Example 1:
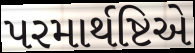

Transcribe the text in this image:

પરમાર્થષ્ટિએ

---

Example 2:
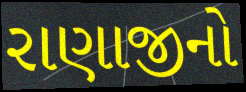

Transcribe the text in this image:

રાણાજીનો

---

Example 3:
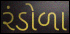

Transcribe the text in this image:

રંડોળા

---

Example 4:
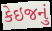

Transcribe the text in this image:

કેઇજનું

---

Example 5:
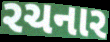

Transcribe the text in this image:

રચનાર